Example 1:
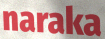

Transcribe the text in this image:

naraka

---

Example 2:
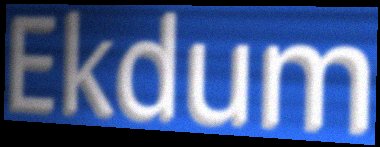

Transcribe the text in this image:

Ekdum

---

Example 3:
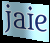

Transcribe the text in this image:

jaie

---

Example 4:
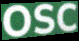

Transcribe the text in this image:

OSC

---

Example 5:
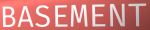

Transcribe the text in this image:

BASEMENT